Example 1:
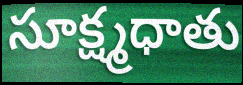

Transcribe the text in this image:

సూక్ష్మధాతు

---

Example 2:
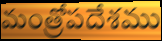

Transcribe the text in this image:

మంత్రోపదేశము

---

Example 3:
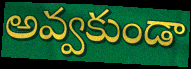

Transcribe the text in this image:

అవ్వకుండా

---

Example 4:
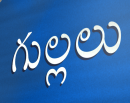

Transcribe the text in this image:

గుల్లలు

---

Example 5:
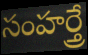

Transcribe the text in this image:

సంహర్త్రే